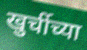
खुर्चीच्या